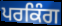
ਪਰਕਿੰਗ